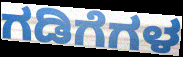
ಗಡಿಗೆಗಳ